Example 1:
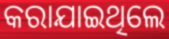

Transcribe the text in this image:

କରାଯାଇଥିଲେ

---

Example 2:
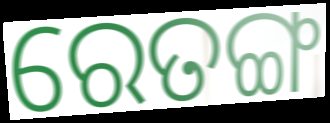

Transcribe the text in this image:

ରେତଙ୍ଗ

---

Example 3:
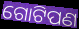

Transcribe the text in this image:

ଗୋଟିପଣ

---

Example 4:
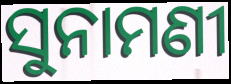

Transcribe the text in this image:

ସୁନାମଣୀ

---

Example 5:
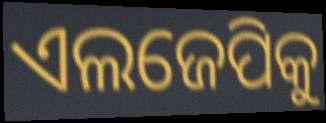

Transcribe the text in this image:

ଏଲଜେପିକୁ